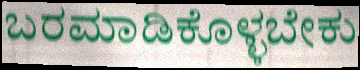
ಬರಮಾಡಿಕೊಳ್ಳಬೇಕು